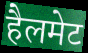
हैलमेट